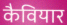
कैवियार